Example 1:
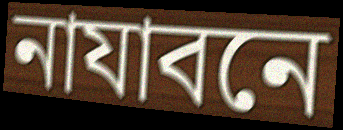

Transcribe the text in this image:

নাযাবনে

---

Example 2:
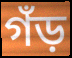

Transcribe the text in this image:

গঁড়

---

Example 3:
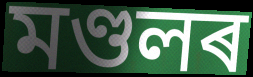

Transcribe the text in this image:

মণ্ডলৰ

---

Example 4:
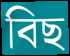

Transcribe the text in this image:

বিছ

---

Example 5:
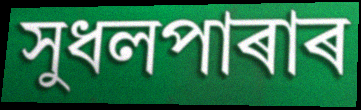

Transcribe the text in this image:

সুধলপাৰাৰ